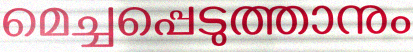
മെച്ചപ്പെടുത്താനും